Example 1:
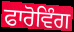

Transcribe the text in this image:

ਫਾਰੋਵਿੰਗ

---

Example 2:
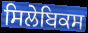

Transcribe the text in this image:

ਸਿਲੇਬਿਕਸ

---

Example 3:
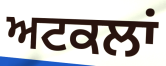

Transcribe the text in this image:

ਅਟਕਲਾਂ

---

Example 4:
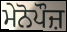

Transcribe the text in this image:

ਮੇਨੋਪੌਜ਼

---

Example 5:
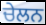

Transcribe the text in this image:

ਚੇਲਨ